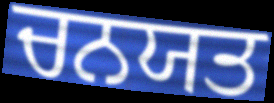
ਚਨਯਤ